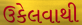
ઉકેલવાથી